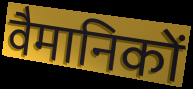
वैमानिकों